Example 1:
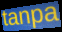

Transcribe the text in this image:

tanpa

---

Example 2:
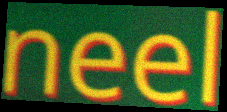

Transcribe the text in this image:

neel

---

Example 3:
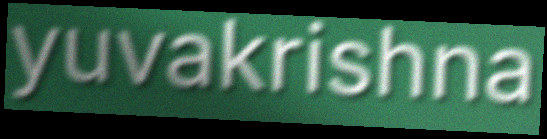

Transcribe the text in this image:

yuvakrishna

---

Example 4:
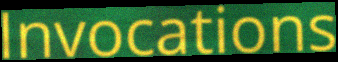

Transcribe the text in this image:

Invocations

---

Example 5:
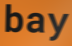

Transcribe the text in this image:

bay